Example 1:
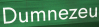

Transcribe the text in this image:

Dumnezeu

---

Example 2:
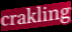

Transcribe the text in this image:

crakling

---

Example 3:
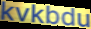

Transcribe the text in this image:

kvkbdu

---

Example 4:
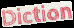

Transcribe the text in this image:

Diction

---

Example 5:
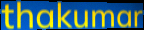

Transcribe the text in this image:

thakumar